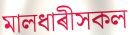
মালধাৰীসকল